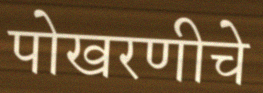
पोखरणीचे